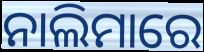
ନାଲିମାରେ